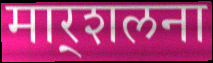
मार्शलना